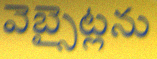
వెబ్సైట్లను